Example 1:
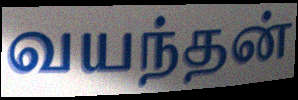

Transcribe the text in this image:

வயந்தன்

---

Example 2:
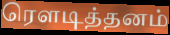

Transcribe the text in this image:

ரௌடித்தனம்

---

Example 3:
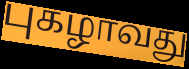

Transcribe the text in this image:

புகழாவது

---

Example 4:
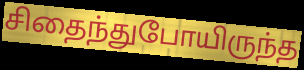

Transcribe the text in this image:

சிதைந்துபோயிருந்த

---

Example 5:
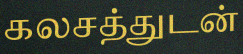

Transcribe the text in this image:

கலசத்துடன்